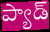
ప్యాడ్